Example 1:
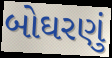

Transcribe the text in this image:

બોઘરણું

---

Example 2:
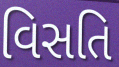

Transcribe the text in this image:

વિસતિ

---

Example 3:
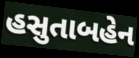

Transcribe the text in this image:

હસુતાબહેન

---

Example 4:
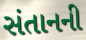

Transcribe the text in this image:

સંતાનની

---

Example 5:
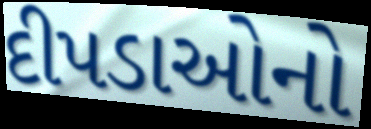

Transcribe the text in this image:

દીપડાઓનો